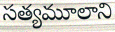
సత్యమూలాని